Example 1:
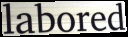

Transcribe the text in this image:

labored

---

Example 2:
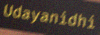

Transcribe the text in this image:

Udayanidhi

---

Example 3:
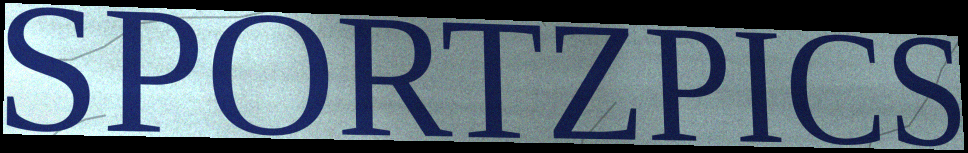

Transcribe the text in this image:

SPORTZPICS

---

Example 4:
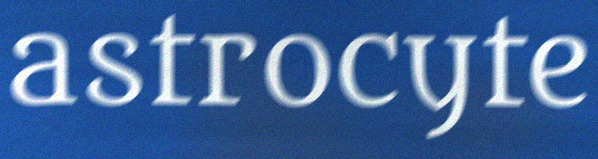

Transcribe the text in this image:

astrocyte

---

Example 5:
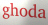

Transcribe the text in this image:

ghoda